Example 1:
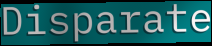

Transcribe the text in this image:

Disparate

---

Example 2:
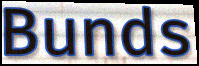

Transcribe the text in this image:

Bunds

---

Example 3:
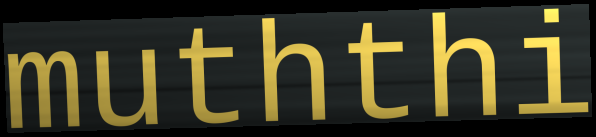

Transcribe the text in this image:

muththi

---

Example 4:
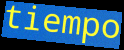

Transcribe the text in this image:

tiempo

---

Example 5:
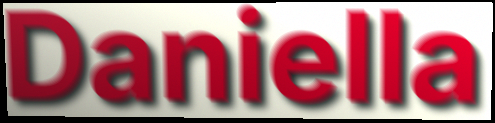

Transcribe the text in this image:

Daniella